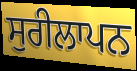
ਸੁਰੀਲਾਪਨ